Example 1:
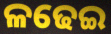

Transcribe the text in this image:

ଳଢେଇ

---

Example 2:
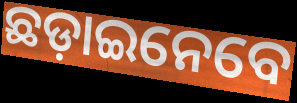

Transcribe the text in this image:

ଛଡ଼ାଇନେବେ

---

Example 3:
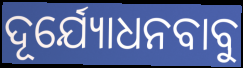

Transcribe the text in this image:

ଦୂର୍ଯ୍ୟୋଧନବାବୁ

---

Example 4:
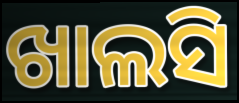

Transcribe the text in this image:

ଖାଲସି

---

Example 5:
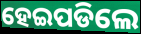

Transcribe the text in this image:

ହେଇପଡିଲେ